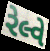
રેલ્વે